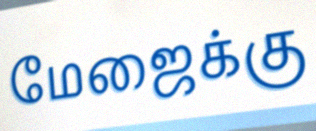
மேஜைக்கு